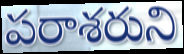
పరాశరుని